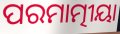
ପରମାତ୍ମୀୟା